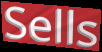
Sells